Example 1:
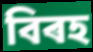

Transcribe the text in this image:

বিৰহ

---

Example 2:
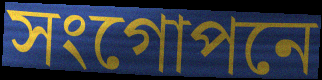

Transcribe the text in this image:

সংগোপনে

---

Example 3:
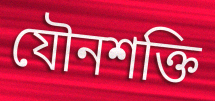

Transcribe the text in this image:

যৌনশক্তি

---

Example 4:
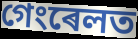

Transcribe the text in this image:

গেংৰেলত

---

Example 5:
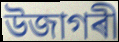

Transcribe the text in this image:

উজাগৰী